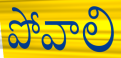
పోవాలి